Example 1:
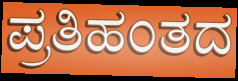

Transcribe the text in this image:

ಪ್ರತಿಹಂತದ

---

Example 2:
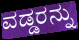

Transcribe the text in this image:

ವಡ್ಡರನ್ನು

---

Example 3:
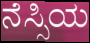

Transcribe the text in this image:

ನೆಸ್ಸಿಯ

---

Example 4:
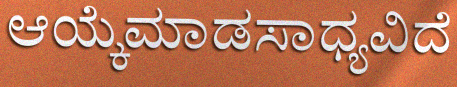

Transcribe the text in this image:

ಆಯ್ಕೆಮಾಡಸಾಧ್ಯವಿದೆ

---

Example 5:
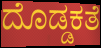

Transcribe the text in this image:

ದೊಡ್ಡಕತೆ